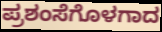
ಪ್ರಶಂಸೆಗೊಳಗಾದ